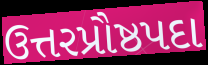
ઉત્તરપ્રૌષ્ઠપદા